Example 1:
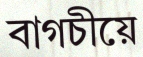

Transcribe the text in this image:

বাগচীয়ে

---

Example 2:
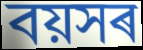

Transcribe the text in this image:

বয়সৰ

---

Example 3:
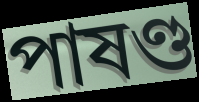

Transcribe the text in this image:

পাষণ্ড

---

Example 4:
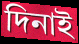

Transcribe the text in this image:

দিনাই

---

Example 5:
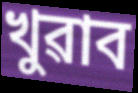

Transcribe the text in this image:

খুৱাব